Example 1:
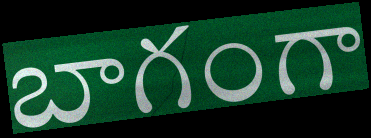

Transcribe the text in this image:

బాగంగా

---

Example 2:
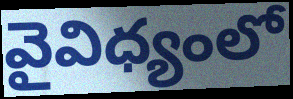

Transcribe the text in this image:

వైవిధ్యంలో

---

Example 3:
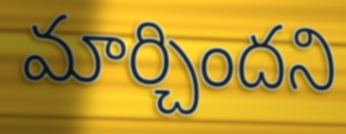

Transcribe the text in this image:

మార్చిందని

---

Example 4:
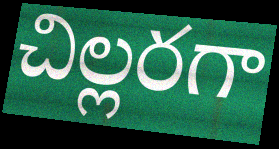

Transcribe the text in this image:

చిల్లరగా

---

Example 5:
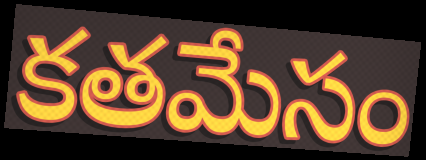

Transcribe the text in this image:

కతమేసం